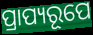
ପ୍ରାପ୍ୟରୂପେ